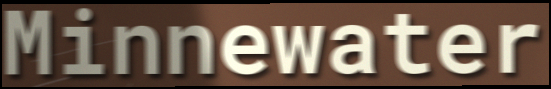
Minnewater